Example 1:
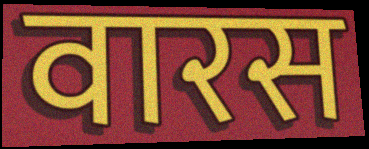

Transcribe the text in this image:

वारस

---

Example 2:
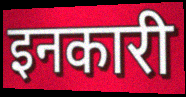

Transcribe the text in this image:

इनकारी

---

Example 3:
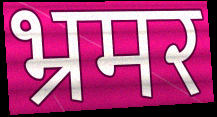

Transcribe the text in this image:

भ्रमर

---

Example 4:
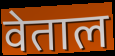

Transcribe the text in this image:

वेताल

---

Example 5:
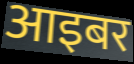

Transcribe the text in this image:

आइबर